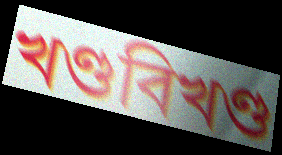
খণ্ডবিখণ্ড